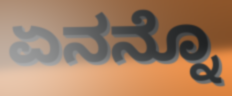
ಏನನ್ನೊ